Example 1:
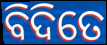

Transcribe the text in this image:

ବିଦିତେ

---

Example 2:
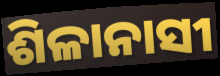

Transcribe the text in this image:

ଶିଳାନାସୀ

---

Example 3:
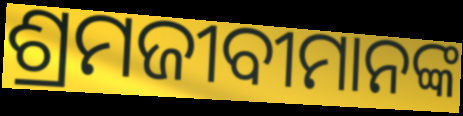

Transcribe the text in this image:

ଶ୍ରମଜୀବୀମାନଙ୍କ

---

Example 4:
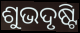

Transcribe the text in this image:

ଶୁଭଦୃଷ୍ଟି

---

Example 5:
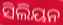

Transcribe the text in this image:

ସିଲିୟନ